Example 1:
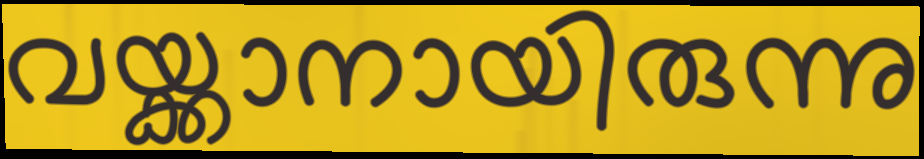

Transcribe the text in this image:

വയ്ക്കാനായിരുന്നു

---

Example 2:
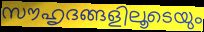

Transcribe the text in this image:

സൗഹൃദങ്ങളിലൂടെയും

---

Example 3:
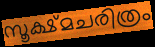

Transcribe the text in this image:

സൂക്ഷ്മചരിത്രം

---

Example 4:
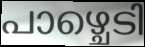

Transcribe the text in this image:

പാഴ്ചെടി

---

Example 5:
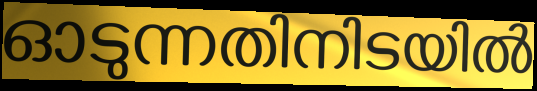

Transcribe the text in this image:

ഓടുന്നതിനിടയിൽ